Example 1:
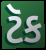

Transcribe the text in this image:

ટૅક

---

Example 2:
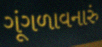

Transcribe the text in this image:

ગૂંગળાવનારું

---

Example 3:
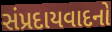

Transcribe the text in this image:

સંપ્રદાયવાદનો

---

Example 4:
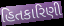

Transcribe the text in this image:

હિતકારિણી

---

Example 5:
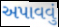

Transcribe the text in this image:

અપાવવું